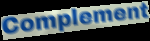
Complement